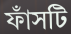
ফাঁসটি